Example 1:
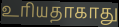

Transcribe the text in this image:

உரியதாகாது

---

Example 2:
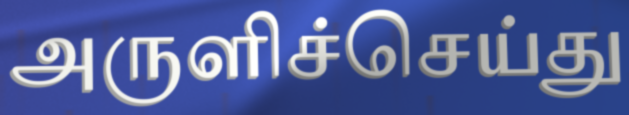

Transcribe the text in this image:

அருளிச்செய்து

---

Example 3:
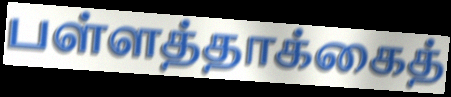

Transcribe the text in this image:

பள்ளத்தாக்கைத்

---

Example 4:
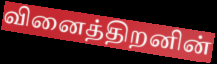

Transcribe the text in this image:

வினைத்திறனின்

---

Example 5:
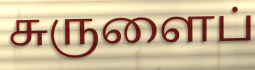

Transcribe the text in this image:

சுருளைப்